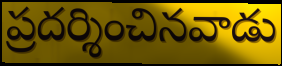
ప్రదర్శించినవాడు